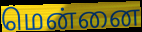
மென்னை